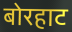
बोरहाट